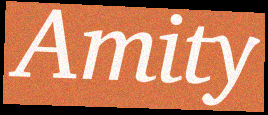
Amity